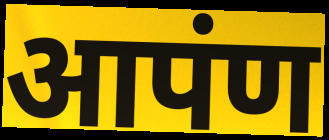
आपंण